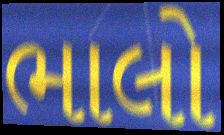
ભાલો